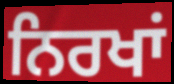
ਨਿਰਖਾਂ